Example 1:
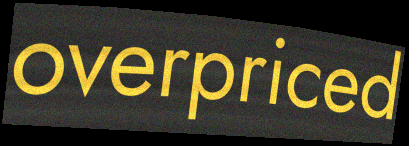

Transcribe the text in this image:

overpriced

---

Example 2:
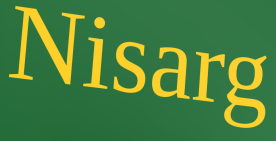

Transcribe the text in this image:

Nisarg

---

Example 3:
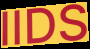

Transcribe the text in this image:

IIDS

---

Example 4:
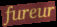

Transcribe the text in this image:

fureur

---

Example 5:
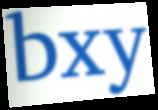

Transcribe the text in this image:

bxy